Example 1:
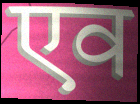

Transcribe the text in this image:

एव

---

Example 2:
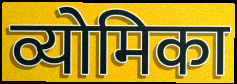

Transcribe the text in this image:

व्योमिका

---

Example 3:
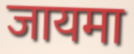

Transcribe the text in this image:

जायमा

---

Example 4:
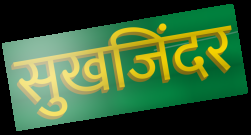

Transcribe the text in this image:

सुखजिंदर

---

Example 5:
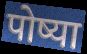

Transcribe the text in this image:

पोष्या